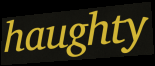
haughty